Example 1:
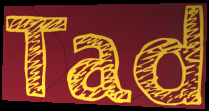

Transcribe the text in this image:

Tad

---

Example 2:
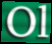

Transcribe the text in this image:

Ol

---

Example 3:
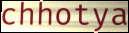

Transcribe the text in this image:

chhotya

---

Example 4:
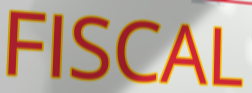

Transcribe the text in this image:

FISCAL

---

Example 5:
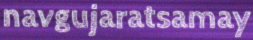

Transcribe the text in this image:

navgujaratsamay